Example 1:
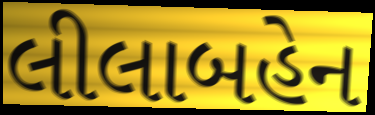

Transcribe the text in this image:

લીલાબહેન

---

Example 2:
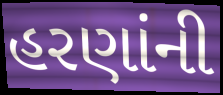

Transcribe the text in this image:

હરણાંની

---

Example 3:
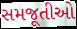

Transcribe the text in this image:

સમજૂતીઓ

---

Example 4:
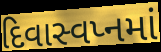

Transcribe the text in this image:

દિવાસ્વપ્નમાં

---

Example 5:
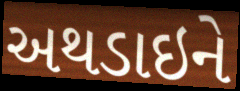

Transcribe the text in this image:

અથડાઇને